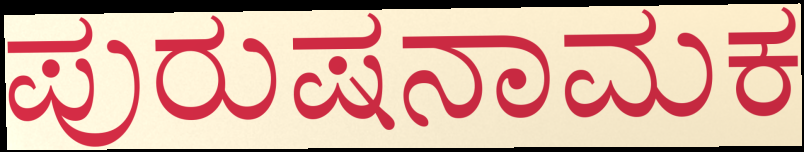
ಪುರುಷನಾಮಕ